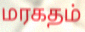
மரகதம்